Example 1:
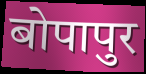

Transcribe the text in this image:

बोपापुर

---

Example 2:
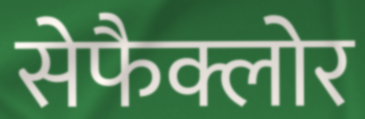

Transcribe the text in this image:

सेफैक्लोर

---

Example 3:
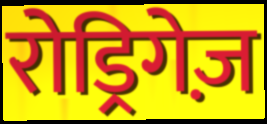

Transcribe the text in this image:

रोड्रिगेज़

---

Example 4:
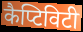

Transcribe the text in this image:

कैप्टिविटी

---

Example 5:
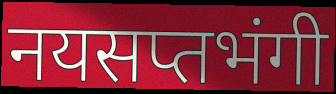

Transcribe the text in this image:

नयसप्तभंगी